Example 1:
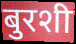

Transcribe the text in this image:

बुरशी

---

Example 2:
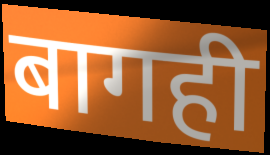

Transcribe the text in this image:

बागही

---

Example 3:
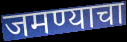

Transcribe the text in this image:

जमण्याचा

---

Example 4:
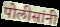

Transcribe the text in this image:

पोलीसांनी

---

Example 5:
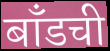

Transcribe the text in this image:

बाँडची